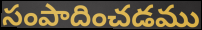
సంపాదించడము